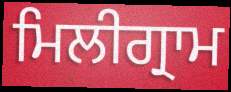
ਮਿਲੀਗ੍ਰਾਮ